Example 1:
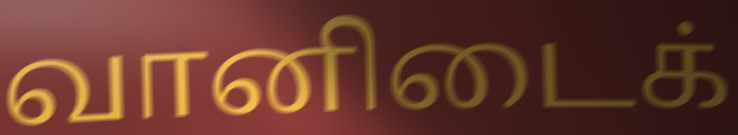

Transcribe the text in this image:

வானிடைக்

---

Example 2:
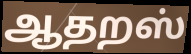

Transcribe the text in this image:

ஆதறஸ்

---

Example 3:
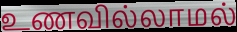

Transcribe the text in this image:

உணவில்லாமல்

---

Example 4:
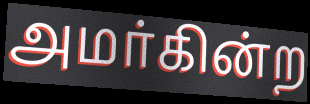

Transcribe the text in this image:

அமர்கின்ற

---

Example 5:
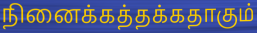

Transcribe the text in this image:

நினைக்கத்தக்கதாகும்